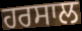
ਹਰਸਾਲ